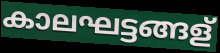
കാലഘട്ടങ്ങള്